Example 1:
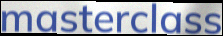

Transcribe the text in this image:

masterclass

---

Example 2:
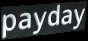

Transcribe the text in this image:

payday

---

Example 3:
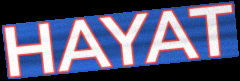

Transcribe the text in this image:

HAYAT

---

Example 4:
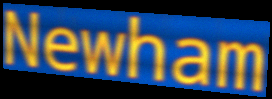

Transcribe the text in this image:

Newham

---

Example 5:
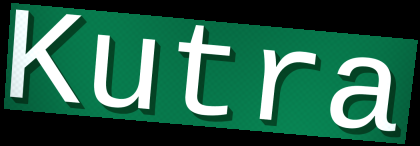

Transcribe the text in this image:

Kutra